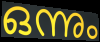
ഒന്നും